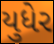
યુધેર